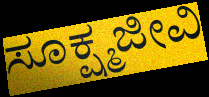
ಸೂಕ್ಷ್ಮಜೀವಿ